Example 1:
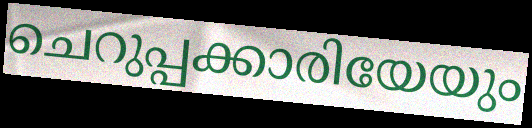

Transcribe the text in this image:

ചെറുപ്പക്കാരിയേയും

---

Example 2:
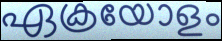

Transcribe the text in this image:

ഏക്രയോളം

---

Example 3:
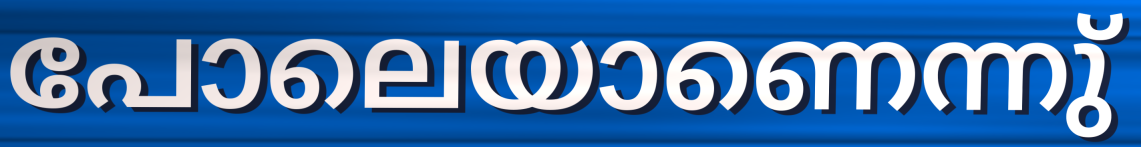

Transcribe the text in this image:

പോലെയാണെന്നു്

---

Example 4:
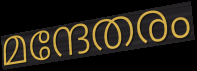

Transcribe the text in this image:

മന്ദേതരം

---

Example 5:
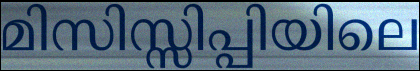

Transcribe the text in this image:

മിസിസ്സിപ്പിയിലെ